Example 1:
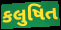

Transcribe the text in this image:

કલુષિત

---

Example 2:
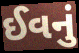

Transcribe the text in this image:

ઈવનું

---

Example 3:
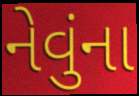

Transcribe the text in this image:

નેવુંના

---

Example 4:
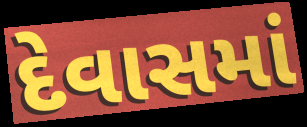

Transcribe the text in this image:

દેવાસમાં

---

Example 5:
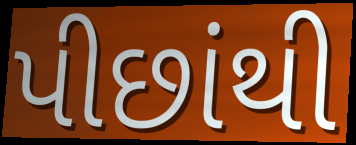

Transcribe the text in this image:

પીછાંથી